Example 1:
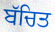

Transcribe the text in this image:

ਬੱਚਿਤ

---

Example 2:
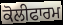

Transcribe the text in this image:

ਕੋਲੀਫਾਰਮ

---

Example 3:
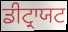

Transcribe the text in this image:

ਡੀਟ੍ਰਾਯਟ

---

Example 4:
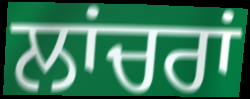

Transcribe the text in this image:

ਲਾਂਚਰਾਂ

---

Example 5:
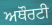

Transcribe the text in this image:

ਅਥੌਰਟੀ